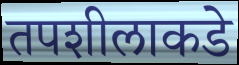
तपशीलाकडे